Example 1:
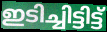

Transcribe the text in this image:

ഇടിച്ചിട്ടിട്ട്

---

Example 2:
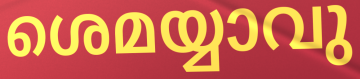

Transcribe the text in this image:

ശെമയ്യാവു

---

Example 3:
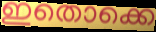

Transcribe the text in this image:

ഇതൊക്കെ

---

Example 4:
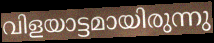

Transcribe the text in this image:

വിളയാട്ടമായിരുന്നു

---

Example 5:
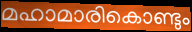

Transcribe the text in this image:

മഹാമാരികൊണ്ടും